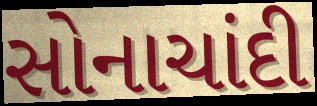
સોનાચાંદી